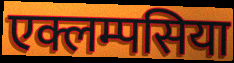
एक्लम्पसिया